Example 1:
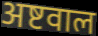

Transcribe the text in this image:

अष्टवाल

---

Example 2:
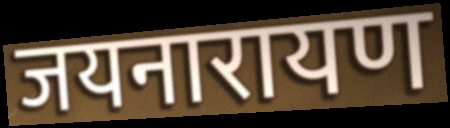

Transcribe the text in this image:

जयनारायण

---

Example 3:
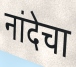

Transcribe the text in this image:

नांदेचा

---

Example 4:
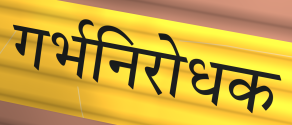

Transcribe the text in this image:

गर्भनिरोधक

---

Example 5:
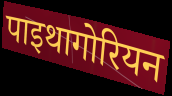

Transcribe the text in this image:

पाइथागोरियन